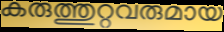
കരുത്തുറ്റവരുമായ